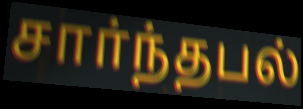
சார்ந்தபல்